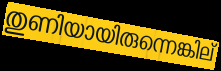
തുണിയായിരുന്നെങ്കില്